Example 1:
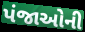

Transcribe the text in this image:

પંજાઓની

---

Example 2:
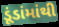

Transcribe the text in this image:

ડૂંડાંમાંથી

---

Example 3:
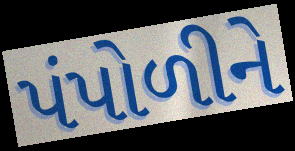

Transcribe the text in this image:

પંપોળીને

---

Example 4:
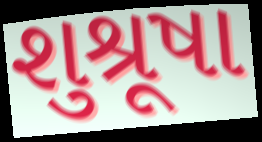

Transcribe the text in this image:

શુશ્રૂષા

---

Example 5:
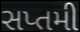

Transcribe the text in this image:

સપ્તમી